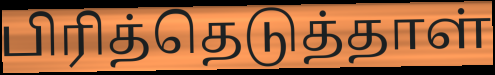
பிரித்தெடுத்தாள்